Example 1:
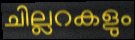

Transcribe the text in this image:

ചില്ലറകളും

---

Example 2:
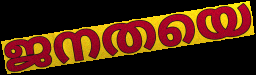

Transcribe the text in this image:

ജനതയെ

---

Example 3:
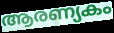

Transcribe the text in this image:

ആരണ്യകം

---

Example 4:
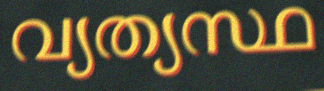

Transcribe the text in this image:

വ്യത്യസ്ഥ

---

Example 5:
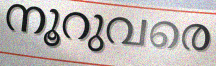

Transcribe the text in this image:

നൂറുവരെ